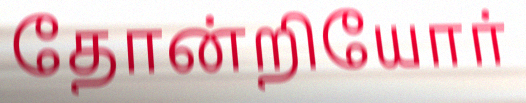
தோன்றியோர்